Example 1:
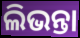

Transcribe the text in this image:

ଲିଭନ୍ତା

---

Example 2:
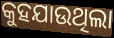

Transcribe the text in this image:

କୁହଯାଉଥିଲା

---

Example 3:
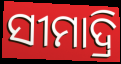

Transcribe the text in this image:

ସୀମାଦ୍ରି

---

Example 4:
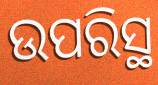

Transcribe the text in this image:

ଉପରିସ୍ଥ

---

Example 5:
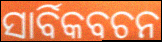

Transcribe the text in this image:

ସାର୍ବିକବଚନ